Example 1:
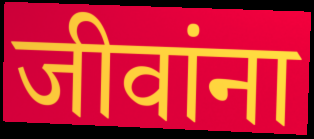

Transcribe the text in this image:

जीवांना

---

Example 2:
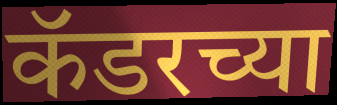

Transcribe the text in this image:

कॅडरच्या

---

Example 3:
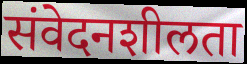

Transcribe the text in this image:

संवेदनशीलता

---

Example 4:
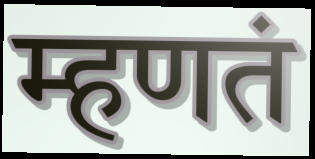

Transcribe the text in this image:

म्हणतं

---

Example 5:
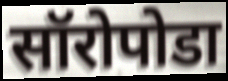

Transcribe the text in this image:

सॉरोपोडा